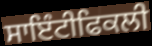
ਸਾਇੰਟੀਫਿਕਲੀ